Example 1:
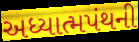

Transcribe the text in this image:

અધ્યાત્મપંથની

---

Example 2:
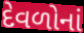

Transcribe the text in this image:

દેવળોનાં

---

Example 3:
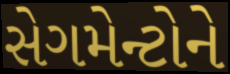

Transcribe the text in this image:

સેગમેન્ટોને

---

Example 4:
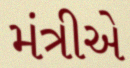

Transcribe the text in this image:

મંત્રીએ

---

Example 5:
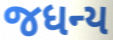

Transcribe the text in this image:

જધન્ય